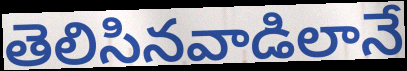
తెలిసినవాడిలానే